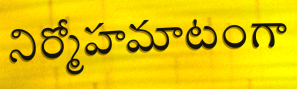
నిర్మోహమాటంగా